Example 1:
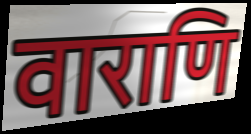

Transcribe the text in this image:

वाराणि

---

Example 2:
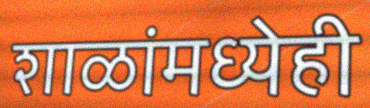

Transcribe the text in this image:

शाळांमध्येही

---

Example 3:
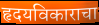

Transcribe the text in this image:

हृदयविकाराचा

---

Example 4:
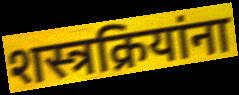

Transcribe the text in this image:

शस्त्रक्रियांना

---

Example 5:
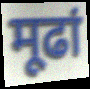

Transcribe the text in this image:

मूढां